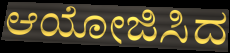
ಆಯೋಜಿಸಿದ